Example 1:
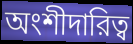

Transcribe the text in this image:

অংশীদারিত্ব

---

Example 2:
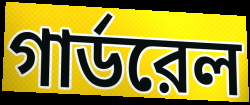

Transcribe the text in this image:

গার্ডরেল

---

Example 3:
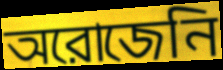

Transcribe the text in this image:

অরোজেনি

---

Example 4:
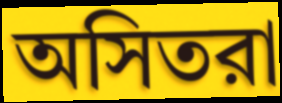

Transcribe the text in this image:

অসিতরা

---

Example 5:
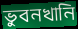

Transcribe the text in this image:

ভুবনখানি